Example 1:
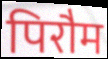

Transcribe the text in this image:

पिरौम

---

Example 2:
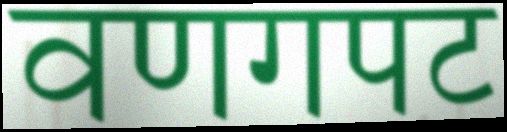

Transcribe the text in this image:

वणगपट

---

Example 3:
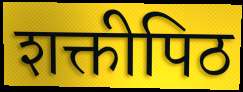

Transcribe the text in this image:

शक्तीपिठ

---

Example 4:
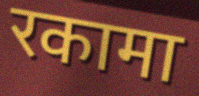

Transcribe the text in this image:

रकामा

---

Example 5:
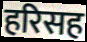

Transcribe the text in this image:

हरिसह